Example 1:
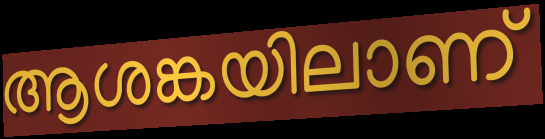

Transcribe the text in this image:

ആശങ്കയിലാണ്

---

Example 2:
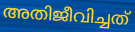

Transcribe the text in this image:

അതിജീവിച്ചത്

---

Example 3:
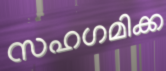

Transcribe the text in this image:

സഹഗമിക്ക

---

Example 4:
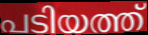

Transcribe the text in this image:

പടിയത്ത്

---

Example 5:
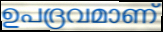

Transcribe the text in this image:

ഉപദ്രവമാണ്